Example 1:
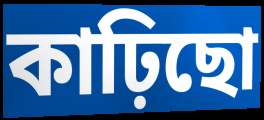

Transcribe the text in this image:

কাঢ়িছো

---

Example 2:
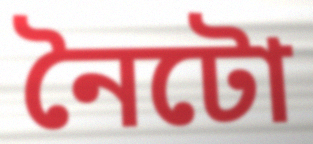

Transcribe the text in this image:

নৈটো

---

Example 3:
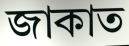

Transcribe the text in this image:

জাকাত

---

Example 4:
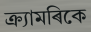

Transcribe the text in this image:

ক্ৰ্যামৰিকে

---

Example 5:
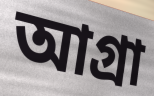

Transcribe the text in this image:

আগ্ৰা